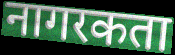
नागरकता